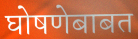
घोषणेबाबत